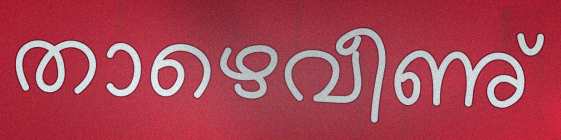
താഴെവീണു്